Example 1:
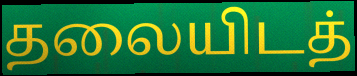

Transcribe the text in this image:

தலையிடத்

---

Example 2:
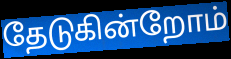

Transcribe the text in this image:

தேடுகின்றோம்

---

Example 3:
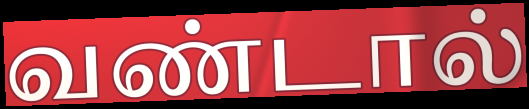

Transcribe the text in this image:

வண்டால்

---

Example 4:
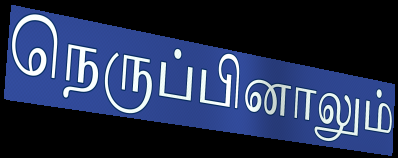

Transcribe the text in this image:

நெருப்பினாலும்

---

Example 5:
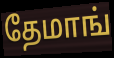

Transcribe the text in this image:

தேமாங்